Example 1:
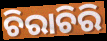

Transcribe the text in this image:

ଚିରାଚିରି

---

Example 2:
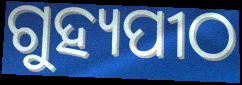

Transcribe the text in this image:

ଗୁହ୍ୟପୀଠ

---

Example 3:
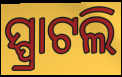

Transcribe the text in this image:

ସ୍ପ୍ରାଟଲି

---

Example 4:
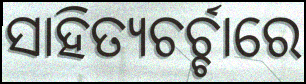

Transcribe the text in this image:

ସାହିତ୍ୟଚର୍ଚ୍ଚାରେ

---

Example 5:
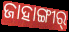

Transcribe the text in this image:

ଜାହାଙ୍ଗୀର୍